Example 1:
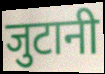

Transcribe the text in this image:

जुटानी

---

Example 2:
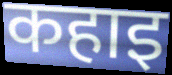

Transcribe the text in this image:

कहाइ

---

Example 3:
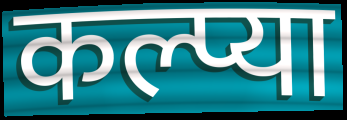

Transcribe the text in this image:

कल्प्या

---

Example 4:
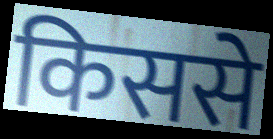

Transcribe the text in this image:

किससे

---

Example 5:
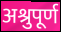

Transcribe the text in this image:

अश्रुपूर्ण